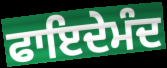
ਫਾਇਦੇਮੰਦ